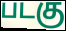
படகு